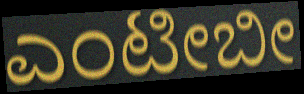
ಎಂಟೀಬೀ